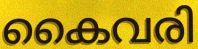
കൈവരി